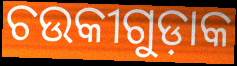
ଚଉକୀଗୁଡ଼ାକ